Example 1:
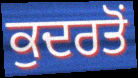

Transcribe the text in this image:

ਕੁਦਰਤੋਂ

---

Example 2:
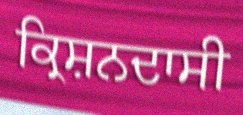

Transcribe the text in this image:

ਕ੍ਰਿਸ਼ਨਦਾਸੀ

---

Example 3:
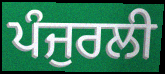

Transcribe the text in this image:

ਪੰਜੁਰਲੀ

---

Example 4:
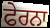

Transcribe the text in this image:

ਫੇਰਨਾ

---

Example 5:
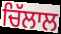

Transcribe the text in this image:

ਚਿੱਲਾਲ